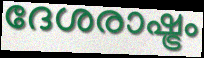
ദേശരാഷ്ട്രം